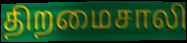
திறமைசாலி